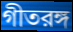
গীতরঙ্গ